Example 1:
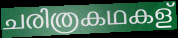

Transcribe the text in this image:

ചരിത്രകഥകള്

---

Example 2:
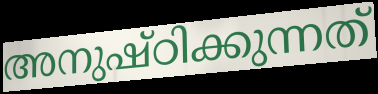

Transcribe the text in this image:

അനുഷ്ഠിക്കുന്നത്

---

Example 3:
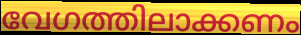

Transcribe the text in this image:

വേഗത്തിലാക്കണം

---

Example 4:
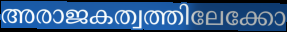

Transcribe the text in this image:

അരാജകത്വത്തിലേക്കോ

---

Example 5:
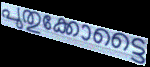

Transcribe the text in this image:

പുതുക്കോട്ടൈ